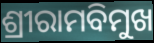
ଶ୍ରୀରାମବିମୁଖ